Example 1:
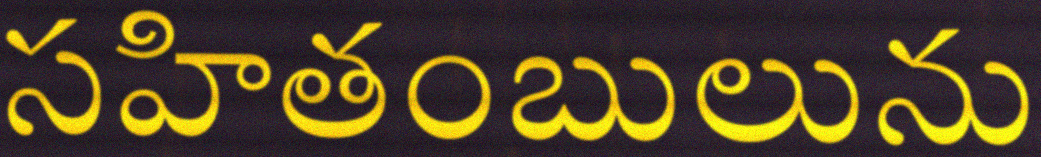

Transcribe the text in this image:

సహితంబులును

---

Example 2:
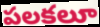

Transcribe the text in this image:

పలకలూ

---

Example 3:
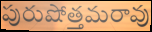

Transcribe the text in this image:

పురుషోత్తమరావు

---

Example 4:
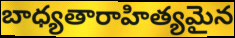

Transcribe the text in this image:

బాధ్యతారాహిత్యమైన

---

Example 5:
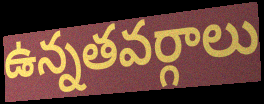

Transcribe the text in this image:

ఉన్నతవర్గాలు